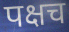
पक्षच